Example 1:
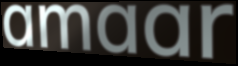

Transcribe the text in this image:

amaar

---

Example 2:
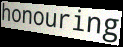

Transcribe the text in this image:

honouring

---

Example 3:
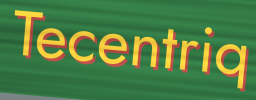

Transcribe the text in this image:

Tecentriq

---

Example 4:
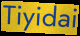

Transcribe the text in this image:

Tiyidai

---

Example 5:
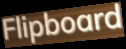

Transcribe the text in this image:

Flipboard